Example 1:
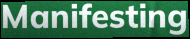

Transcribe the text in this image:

Manifesting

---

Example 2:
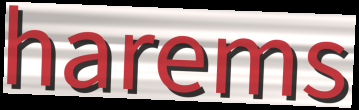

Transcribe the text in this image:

harems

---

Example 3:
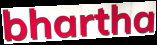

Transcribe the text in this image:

bhartha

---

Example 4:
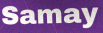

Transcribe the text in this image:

Samay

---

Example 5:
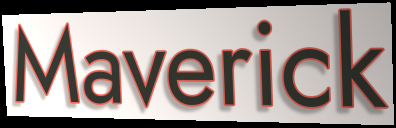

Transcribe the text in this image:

Maverick